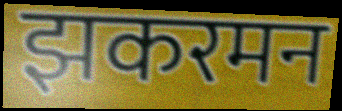
झकरमन